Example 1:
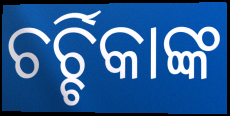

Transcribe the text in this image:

ଚର୍ଚ୍ଚିକାଙ୍କ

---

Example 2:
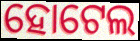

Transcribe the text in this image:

ହୋଟେଲ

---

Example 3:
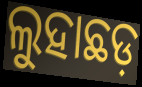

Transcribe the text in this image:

ଲୁହାଛଡ଼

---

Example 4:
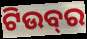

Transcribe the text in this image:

ଟିଉବ୍‍ର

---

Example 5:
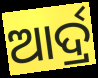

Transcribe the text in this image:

ଆର୍ଦ୍ର